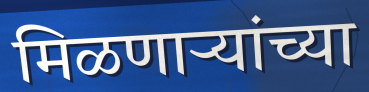
मिळणाऱ्यांच्या